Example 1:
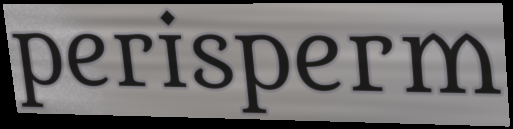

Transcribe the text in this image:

perisperm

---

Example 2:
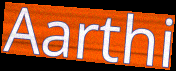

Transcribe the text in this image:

Aarthi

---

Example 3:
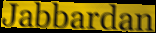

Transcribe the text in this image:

Jabbardan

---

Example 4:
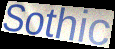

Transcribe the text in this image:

Sothic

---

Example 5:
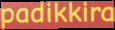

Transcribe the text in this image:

padikkira